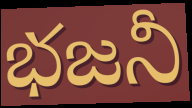
భజనీ